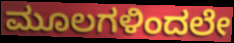
ಮೂಲಗಳಿಂದಲೇ